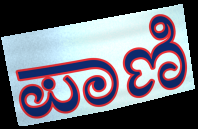
ಪಾಣಿ